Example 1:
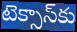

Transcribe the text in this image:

టెక్సాస్‌కు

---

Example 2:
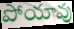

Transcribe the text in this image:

పోయావు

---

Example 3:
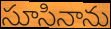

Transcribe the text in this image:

సూసినాను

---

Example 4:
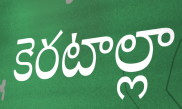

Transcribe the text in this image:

కెరటాల్లా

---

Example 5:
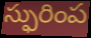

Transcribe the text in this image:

స్ఫురింప